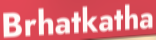
Brhatkatha